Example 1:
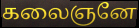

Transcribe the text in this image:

கலைஞனே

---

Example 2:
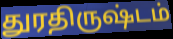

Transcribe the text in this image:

துரதிருஷ்டம்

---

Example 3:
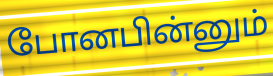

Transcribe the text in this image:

போனபின்னும்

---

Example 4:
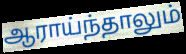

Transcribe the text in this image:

ஆராய்ந்தாலும்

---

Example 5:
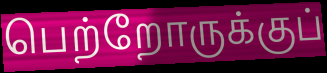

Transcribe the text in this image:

பெற்றோருக்குப்